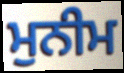
ਮੁਨੀਮ